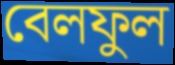
বেলফুল